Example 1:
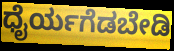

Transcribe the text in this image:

ಧೈರ್ಯಗೆಡಬೇಡಿ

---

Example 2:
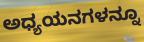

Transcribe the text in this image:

ಅಧ್ಯಯನಗಳನ್ನೂ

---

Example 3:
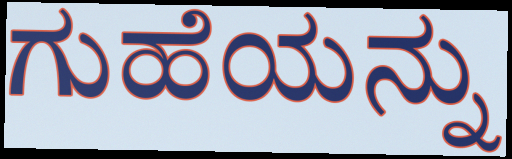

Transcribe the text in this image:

ಗುಹೆಯನ್ನು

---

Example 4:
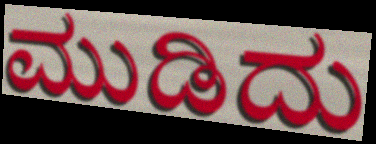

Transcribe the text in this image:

ಮುಡಿದು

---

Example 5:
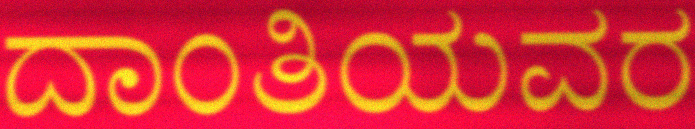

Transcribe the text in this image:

ದಾಂತಿಯವರ